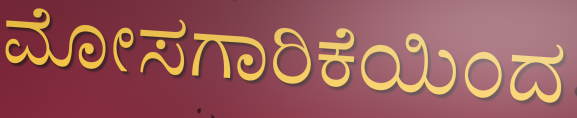
ಮೋಸಗಾರಿಕೆಯಿಂದ